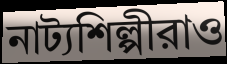
নাট্যশিল্পীরাও